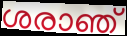
ശരാഞ്